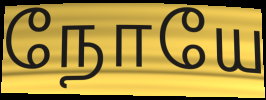
நோயே